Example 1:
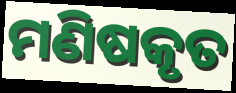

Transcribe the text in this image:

ମଣିଷକୃତ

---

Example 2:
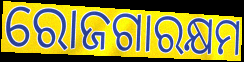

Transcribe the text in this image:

ରୋଜଗାରକ୍ଷମ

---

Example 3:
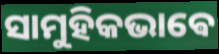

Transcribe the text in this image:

ସାମୁହିକଭାଵେ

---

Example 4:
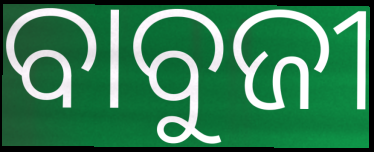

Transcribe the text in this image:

ବାବୁଜୀ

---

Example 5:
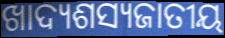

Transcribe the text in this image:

ଖାଦ୍ୟଶସ୍ୟଜାତୀୟ